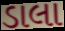
ડાલા